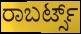
ರಾಬರ್ಟ್ಸ್